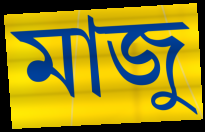
মাজু